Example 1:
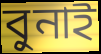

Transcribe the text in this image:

বুনাই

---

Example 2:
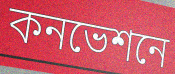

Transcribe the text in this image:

কনভেশনে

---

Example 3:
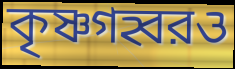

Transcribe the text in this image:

কৃষ্ণগহ্বরও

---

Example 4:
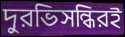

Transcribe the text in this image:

দুরভিসন্ধিরই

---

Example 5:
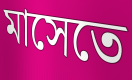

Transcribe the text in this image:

মাসেতে